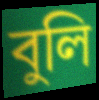
বুলি